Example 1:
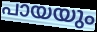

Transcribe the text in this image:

പായയും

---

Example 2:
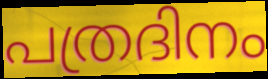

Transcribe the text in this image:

പത്രദിനം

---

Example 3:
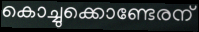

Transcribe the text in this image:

കൊച്ചുക്കൊണ്ടേരന്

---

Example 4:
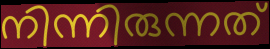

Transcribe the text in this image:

നിന്നിരുന്നത്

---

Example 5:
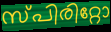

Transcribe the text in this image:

സ്പിരിറ്റോ